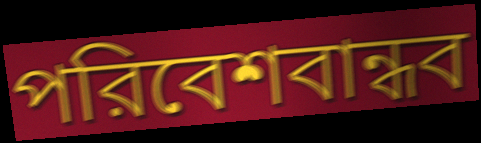
পরিবেশবান্ধব